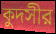
কুদসীর